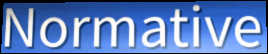
Normative